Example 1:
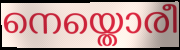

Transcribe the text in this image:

നെയ്തൊരീ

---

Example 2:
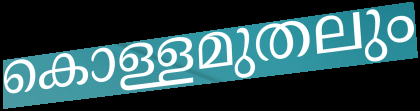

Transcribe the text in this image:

കൊള്ളമുതലും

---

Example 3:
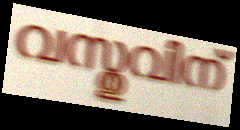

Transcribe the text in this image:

വസ്തുവിന്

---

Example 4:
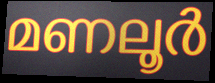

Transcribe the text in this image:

മണലൂർ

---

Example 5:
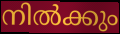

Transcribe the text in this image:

നിൽക്കും